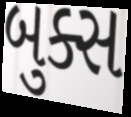
બુક્સ